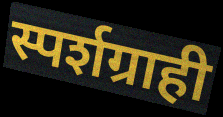
स्पर्शग्राही